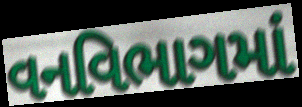
વનવિભાગમાં